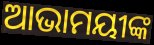
ଆଭାମୟୀଙ୍କ